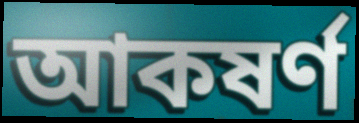
আকষৰ্ণ